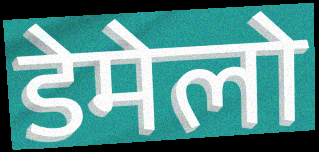
डेमेलो